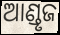
ଆଣ୍ଡୃଜ